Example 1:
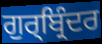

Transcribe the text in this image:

ਗੁਰ੍ਬ੍ਰਿੰਦਰ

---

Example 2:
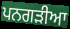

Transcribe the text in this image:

ਪਨਗੜੀਆ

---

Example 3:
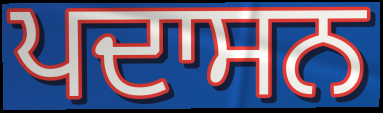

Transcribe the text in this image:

ਪਦਾਸਨ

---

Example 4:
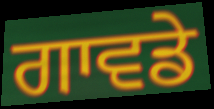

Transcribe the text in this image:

ਗਾਵਡੇ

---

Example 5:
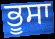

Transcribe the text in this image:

ਭੂਸਾ